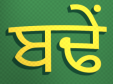
ਬਢੇਂ